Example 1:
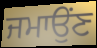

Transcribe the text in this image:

ਜਮਾਉਂਣ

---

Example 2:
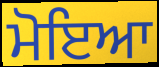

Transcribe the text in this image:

ਮੋਇਆ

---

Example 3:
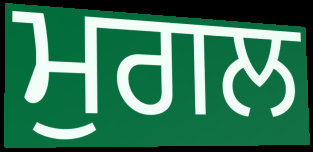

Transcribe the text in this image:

ਮੁਗਲ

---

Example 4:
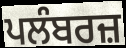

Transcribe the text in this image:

ਪਲੰਬਰਜ਼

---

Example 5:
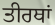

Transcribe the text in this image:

ਤੀਰਥਾਂ